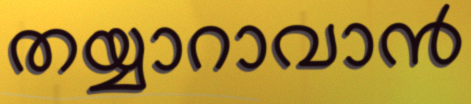
തയ്യാറാവാൻ